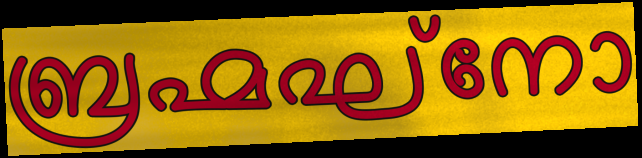
ബ്രഹ്മഘ്നോ